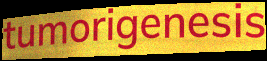
tumorigenesis